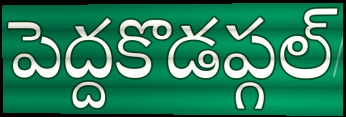
పెద్దకొడప్గల్